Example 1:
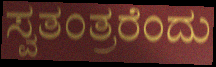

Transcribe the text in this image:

ಸ್ವತಂತ್ರರೆಂದು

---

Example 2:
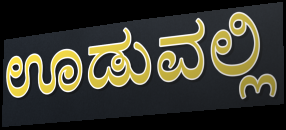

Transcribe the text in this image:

ಊಡುವಲ್ಲಿ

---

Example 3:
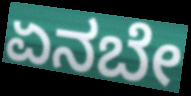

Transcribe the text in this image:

ಏನಬೇ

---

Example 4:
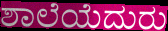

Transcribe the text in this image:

ಶಾಲೆಯೆದುರು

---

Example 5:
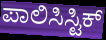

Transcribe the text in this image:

ಪಾಲಿಸಿಸ್ಟಿಕ್